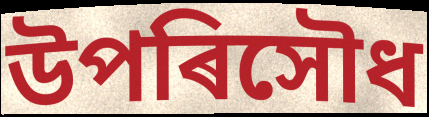
উপৰিসৌধ